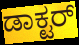
ಡಾಕ್ಟರ್